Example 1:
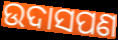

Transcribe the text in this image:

ଉଦାସପଣ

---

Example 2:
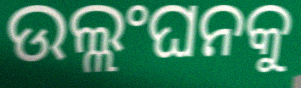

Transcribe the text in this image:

ଉଲ୍ଲଂଘନକୁ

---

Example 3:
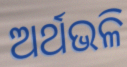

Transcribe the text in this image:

ଅର୍ଥଭଳି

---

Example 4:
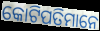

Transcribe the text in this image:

କୋଟିପତିମାନେ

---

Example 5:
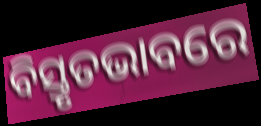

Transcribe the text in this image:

ବିସ୍ତୃତଭାବରେ